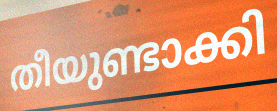
തീയുണ്ടാക്കി